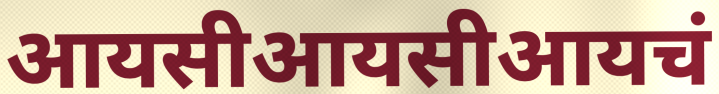
आयसीआयसीआयचं